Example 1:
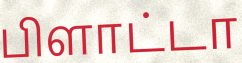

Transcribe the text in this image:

பிளாட்டா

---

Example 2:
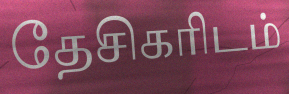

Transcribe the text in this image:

தேசிகரிடம்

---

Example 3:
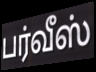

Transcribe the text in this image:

பர்வீஸ்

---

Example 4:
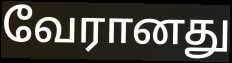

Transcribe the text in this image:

வேரானது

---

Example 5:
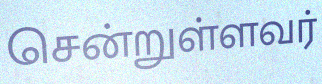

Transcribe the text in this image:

சென்றுள்ளவர்